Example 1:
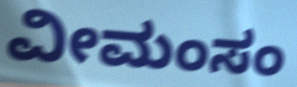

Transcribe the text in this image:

ವೀಮಂಸಂ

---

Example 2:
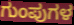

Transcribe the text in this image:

ಗುಂಪುಗಳ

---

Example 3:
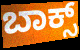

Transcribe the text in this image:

ಬಾಕ್ಸ್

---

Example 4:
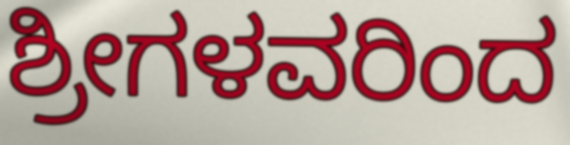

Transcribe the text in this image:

ಶ್ರೀಗಳವರಿಂದ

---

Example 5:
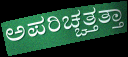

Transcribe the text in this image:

ಅಪರಿಚ್ಚತ್ತತ್ತಾ